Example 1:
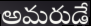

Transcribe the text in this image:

అమరుడే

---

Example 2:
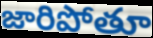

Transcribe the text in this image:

జారిపోతూ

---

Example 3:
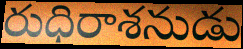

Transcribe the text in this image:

రుధిరాశనుడు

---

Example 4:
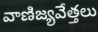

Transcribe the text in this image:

వాణిజ్యవేత్తలు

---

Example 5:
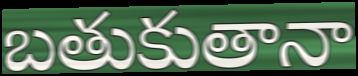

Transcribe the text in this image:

బతుకుతానా